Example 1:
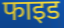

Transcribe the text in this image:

फाइड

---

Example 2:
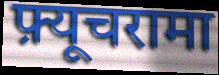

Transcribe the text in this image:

फ़्यूचरामा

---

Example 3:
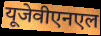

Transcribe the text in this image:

यूजेवीएनएल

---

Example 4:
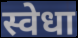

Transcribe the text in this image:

स्वेधा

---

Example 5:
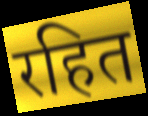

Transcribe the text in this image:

रहित